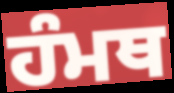
ਹੰਮਥ